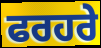
ਫਰਹਰੇ